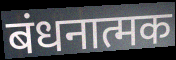
बंधनात्मक